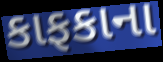
કાફકાના